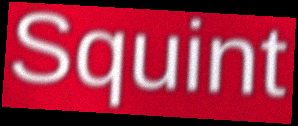
Squint